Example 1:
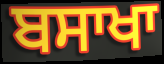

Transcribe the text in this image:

ਬਸਾਖਾ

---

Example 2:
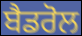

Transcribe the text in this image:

ਬੈਡਰੋਲ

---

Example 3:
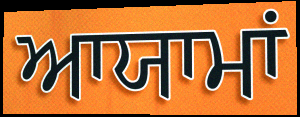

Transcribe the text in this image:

ਆਯਾਮਾਂ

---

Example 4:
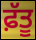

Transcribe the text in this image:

ਫ਼ੱਤੂ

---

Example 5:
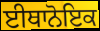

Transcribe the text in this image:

ਈਥਾਨੋਇਕ